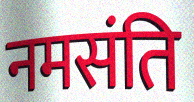
नमसंति